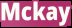
Mckay